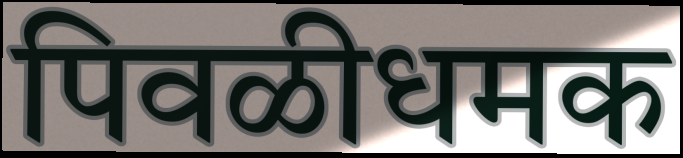
पिवळीधमक